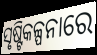
ସୃଷ୍ଟିକଳ୍ପନାରେ